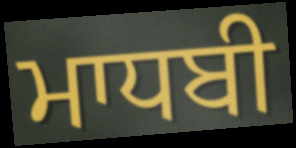
ਮਾਧਬੀ